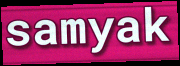
samyak